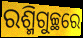
ରଶ୍ମିଗୁଚ୍ଛରେ